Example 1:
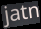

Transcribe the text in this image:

jatn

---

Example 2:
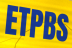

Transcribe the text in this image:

ETPBS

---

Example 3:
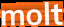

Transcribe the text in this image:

molt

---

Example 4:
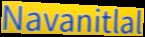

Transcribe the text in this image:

Navanitlal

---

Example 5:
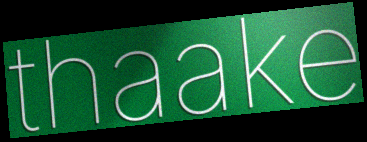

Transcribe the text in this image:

thaake